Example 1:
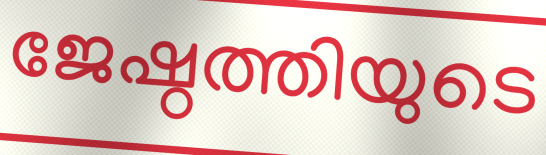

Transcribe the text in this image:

ജേഷ്ഠത്തിയുടെ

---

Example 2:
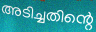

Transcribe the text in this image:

അടിച്ചതിന്റെ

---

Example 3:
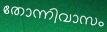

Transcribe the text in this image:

തോന്നിവാസം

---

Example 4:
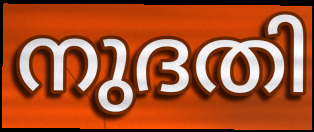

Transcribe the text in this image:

നുദതി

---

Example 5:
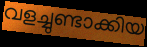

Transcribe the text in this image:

വളച്ചുണ്ടാക്കിയ